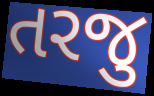
તરજુ